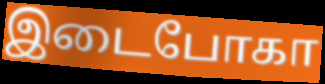
இடைபோகா